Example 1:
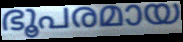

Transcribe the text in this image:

ഭൂപരമായ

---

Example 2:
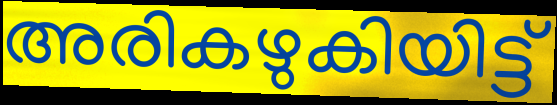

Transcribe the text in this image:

അരികഴുകിയിട്ട്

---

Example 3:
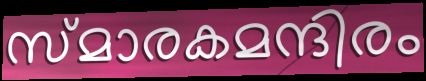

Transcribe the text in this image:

സ്മാരകമന്ദിരം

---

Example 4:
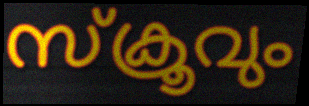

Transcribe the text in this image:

സ്ക്രൂവും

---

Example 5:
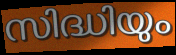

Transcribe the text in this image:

സിദ്ധിയും